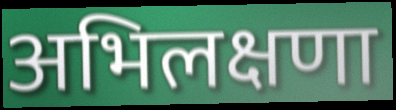
अभिलक्षणा